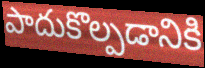
పాదుకొల్పడానికి